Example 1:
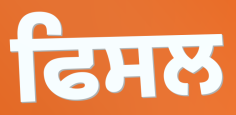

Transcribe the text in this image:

ਫਿਸਲ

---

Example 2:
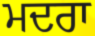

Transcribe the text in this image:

ਮਦਰਾ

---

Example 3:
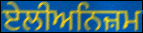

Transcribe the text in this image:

ਏਲੀਅਨਿਜ਼ਮ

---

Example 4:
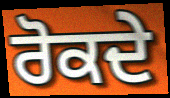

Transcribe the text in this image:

ਰੋਕਦੇ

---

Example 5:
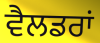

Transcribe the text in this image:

ਵੈਲਡਰਾਂ